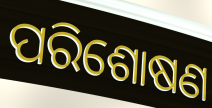
ପରିଶୋଷଣ